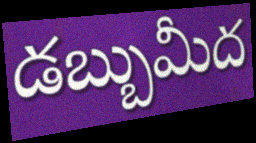
డబ్బుమీద